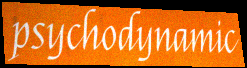
psychodynamic